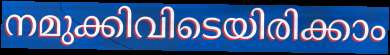
നമുക്കിവിടെയിരിക്കാം